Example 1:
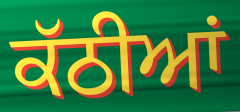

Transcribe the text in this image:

ਕੱਠੀਆਂ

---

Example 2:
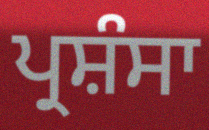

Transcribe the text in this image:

ਪ੍ਰਸ਼ੰਸਾ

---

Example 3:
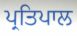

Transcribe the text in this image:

ਪ੍ਰਤਿਪਾਲ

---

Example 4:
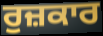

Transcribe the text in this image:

ਰੁਜ਼ਕਾਰ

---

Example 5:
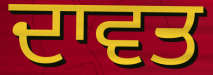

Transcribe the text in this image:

ਦਾਵਤ